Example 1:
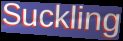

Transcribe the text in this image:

Suckling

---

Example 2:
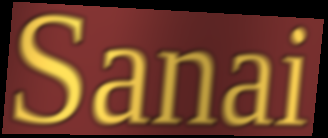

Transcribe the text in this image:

Sanai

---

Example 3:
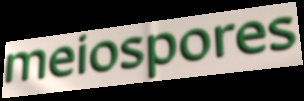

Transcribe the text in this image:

meiospores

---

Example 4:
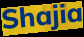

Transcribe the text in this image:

Shajia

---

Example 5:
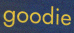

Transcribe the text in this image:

goodie